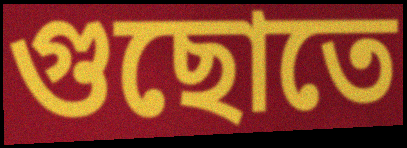
গুছোতে